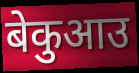
बेकुआउ